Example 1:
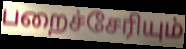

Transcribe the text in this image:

பறைச்சேரியும்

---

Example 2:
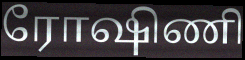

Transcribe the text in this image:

ரோஷிணி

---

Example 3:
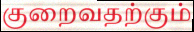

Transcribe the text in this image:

குறைவதற்கும்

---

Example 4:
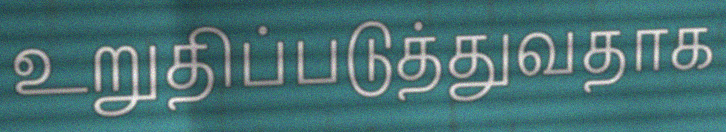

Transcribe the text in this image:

உறுதிப்படுத்துவதாக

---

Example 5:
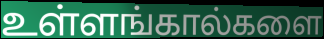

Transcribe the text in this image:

உள்ளங்கால்களை